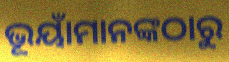
ଭୂୟାଁମାନଙ୍କଠାରୁ